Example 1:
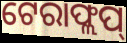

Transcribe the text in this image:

ଟେରାଫ୍ଲପ୍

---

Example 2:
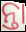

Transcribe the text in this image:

ନ୍ତା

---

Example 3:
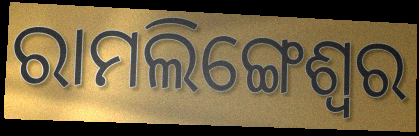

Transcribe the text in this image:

ରାମଲିଙ୍ଗେଶ୍ୱର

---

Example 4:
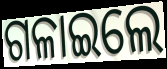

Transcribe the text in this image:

ଗଳାଇଲେ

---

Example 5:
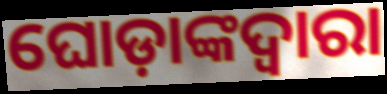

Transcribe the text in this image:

ଘୋଡ଼ାଙ୍କଦ୍ୱାରା